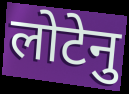
लोटेनु